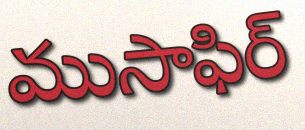
ముసాఫిర్